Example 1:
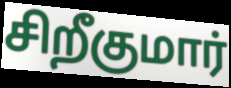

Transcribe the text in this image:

சிறீகுமார்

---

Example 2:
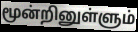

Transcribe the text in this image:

மூன்றினுள்ளும்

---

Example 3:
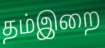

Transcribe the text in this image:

தம்இறை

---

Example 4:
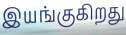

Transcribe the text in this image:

இயங்குகிறது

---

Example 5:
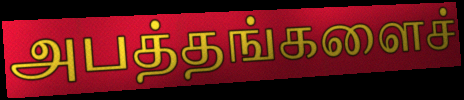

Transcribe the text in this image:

அபத்தங்களைச்